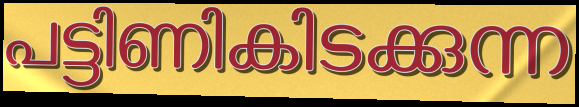
പട്ടിണികിടക്കുന്ന